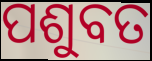
ପଶୁବତ